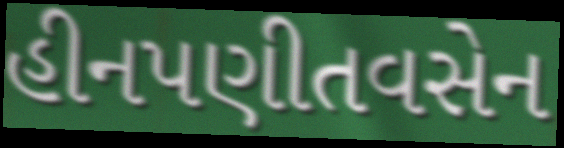
હીનપણીતવસેન